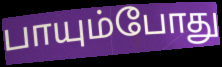
பாயும்போது